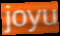
joyu